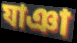
যাঞা